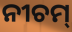
ନୀଚମ୍